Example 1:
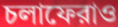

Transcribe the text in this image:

চলাফেরাও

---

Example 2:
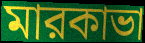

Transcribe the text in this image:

মারকাভা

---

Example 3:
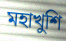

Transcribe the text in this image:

মহাখুশি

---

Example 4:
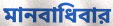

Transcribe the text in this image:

মানবাধিবার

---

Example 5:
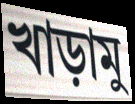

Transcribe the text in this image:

খাড়ামু